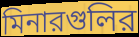
মিনারগুলির